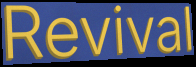
Revival